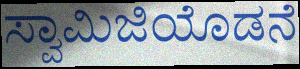
ಸ್ವಾಮಿಜಿಯೊಡನೆ